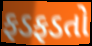
ફડફડતો